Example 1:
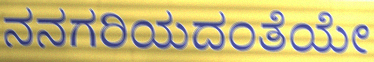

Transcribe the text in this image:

ನನಗರಿಯದಂತೆಯೇ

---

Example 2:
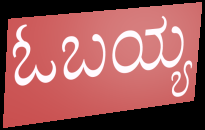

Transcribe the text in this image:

ಓಬಯ್ಯ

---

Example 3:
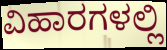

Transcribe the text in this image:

ವಿಹಾರಗಳಲ್ಲಿ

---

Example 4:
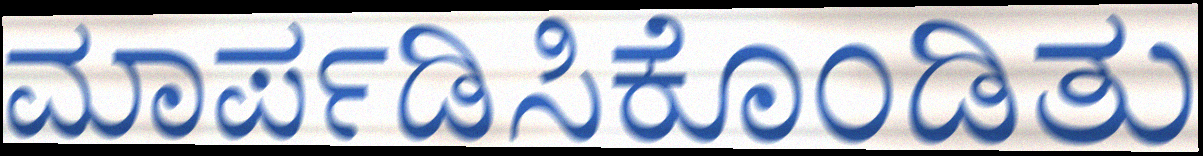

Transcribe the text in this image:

ಮಾರ್ಪಡಿಸಿಕೊಂಡಿತು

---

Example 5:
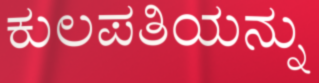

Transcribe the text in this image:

ಕುಲಪತಿಯನ್ನು